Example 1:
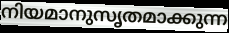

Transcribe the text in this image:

നിയമാനുസൃതമാക്കുന്ന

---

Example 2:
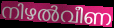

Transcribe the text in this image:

നിഴൽവീണ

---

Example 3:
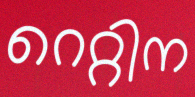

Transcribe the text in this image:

റെറ്റിന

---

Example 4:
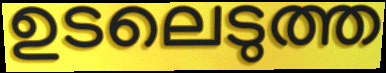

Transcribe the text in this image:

ഉടലെടുത്ത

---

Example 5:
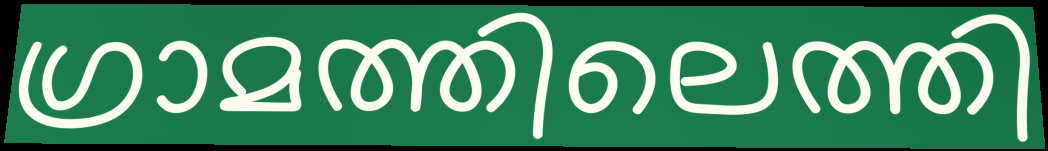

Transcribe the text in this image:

ഗ്രാമത്തിലെത്തി